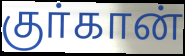
குர்கான்